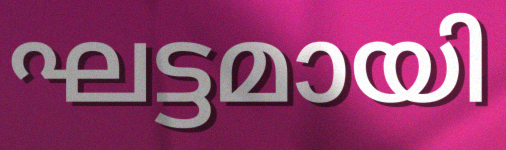
ഘട്ടമായി